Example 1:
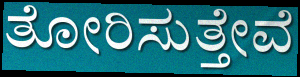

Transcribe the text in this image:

ತೋರಿಸುತ್ತೇವೆ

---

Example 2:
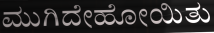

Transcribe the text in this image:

ಮುಗಿದೇಹೋಯಿತು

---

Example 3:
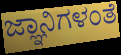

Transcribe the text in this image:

ಜ್ಞಾನಿಗಳಂತೆ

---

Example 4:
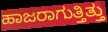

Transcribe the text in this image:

ಹಾಜರಾಗುತ್ತಿತ್ತು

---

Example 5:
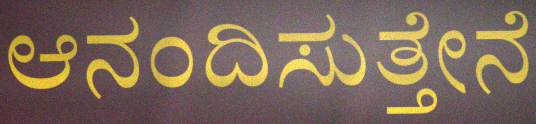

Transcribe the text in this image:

ಆನಂದಿಸುತ್ತೇನೆ